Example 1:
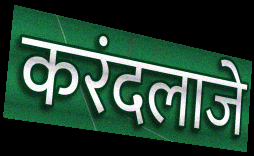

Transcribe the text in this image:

करंदलाजे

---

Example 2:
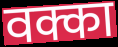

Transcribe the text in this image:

वक्का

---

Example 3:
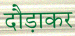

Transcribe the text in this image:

दौड़ाकर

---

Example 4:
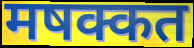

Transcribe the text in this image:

मषक्कत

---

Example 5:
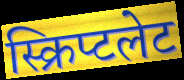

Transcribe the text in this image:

स्क्रिप्टलेट